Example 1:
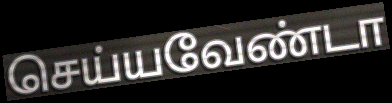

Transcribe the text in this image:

செய்யவேண்டா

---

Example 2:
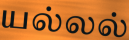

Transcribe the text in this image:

யல்லல்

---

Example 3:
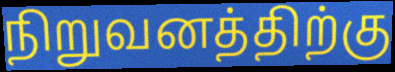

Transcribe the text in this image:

நிறுவனத்திற்கு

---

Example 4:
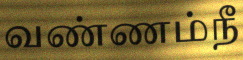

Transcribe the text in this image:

வண்ணம்நீ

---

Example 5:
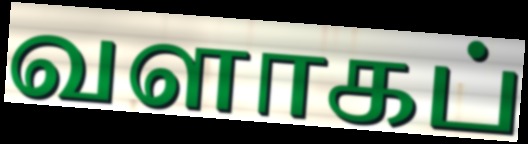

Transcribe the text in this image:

வளாகப்